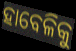
ହାବେଳିକୁ